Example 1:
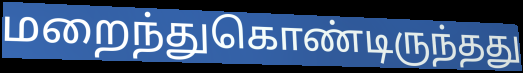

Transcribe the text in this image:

மறைந்துகொண்டிருந்தது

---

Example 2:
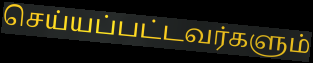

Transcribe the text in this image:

செய்யப்பட்டவர்களும்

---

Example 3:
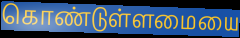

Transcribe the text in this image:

கொண்டுள்ளமையை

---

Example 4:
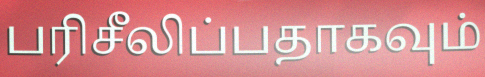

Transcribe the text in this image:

பரிசீலிப்பதாகவும்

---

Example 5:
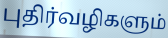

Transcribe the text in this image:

புதிர்வழிகளும்